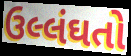
ઉલ્લંઘતો